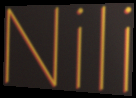
Nili